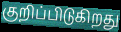
குறிப்பிடுகிறது